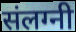
संलग्नी